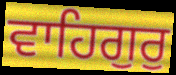
ਵਾਹਿਗੁਰੁ